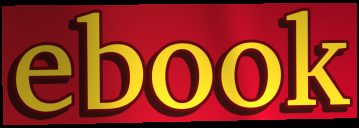
ebook